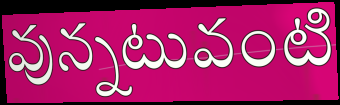
వున్నటువంటి